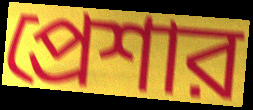
প্রেশার